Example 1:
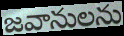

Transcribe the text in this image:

జవానులను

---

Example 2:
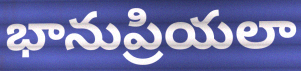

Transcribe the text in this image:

భానుప్రియలా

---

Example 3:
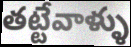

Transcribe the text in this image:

తట్టేవాళ్ళు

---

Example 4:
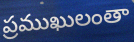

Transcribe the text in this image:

ప్రముఖులంతా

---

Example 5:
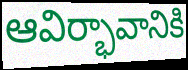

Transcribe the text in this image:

ఆవిర్భావానికి